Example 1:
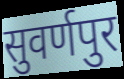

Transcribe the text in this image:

सुवर्णपुर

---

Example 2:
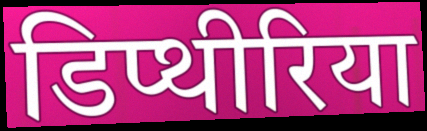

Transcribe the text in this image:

डिप्थीरिया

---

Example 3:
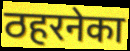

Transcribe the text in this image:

ठहरनेका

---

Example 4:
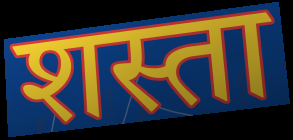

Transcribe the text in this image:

शस्ता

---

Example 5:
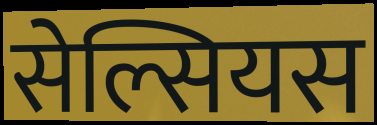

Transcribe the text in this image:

सेल्सियस